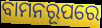
ବାମନରୂପରେ